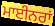
ਮਾਈਨਰਾਂ